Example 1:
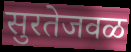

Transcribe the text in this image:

सुरतेजवळ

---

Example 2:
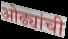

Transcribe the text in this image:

ओढ्यांची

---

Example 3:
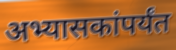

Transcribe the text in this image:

अभ्यासकांपर्यंत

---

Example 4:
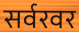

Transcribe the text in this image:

सर्वरवर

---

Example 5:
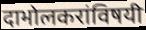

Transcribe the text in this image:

दाभोलकरांविषयी